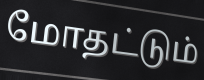
மோதட்டும்